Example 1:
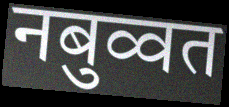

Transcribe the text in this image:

नबुव्वत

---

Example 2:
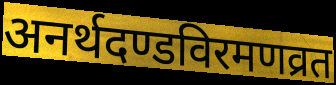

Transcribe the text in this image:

अनर्थदण्डविरमणव्रत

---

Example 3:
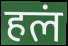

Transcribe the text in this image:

हलं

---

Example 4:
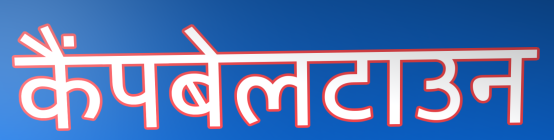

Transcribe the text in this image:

कैंपबेलटाउन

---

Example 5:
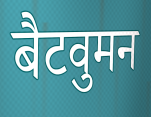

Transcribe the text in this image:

बैटवुमन